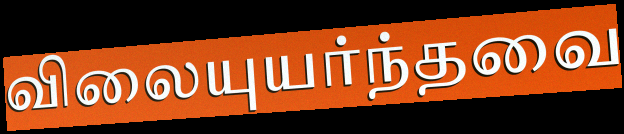
விலையுயர்ந்தவை